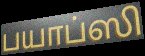
பயாப்ஸி